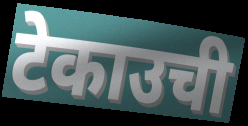
टेकाउची